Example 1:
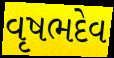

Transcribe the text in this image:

વૃષભદેવ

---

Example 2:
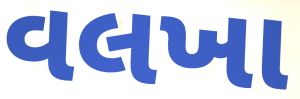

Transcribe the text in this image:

વલખા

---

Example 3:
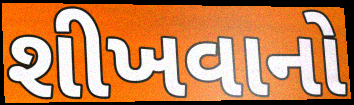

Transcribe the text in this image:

શીખવાનો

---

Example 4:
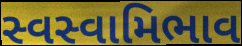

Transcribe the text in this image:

સ્વસ્વામિભાવ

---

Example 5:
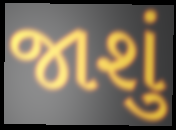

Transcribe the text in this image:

જાશું